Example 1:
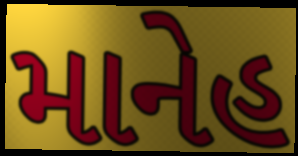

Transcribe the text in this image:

માનેહ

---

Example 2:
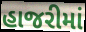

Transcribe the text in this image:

હાજરીમાં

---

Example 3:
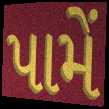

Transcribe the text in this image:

પામેં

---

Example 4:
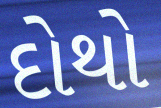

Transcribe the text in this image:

દોથો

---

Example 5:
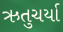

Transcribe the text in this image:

ઋતુચર્યા